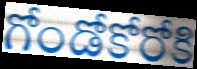
గోండోకోరోకి